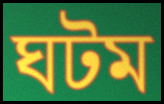
ঘটম